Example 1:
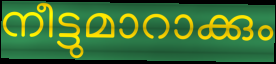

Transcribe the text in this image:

നീട്ടുമാറാക്കും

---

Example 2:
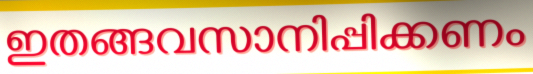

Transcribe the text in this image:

ഇതങ്ങവസാനിപ്പിക്കണം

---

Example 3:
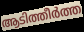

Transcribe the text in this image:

ആടിത്തീർത്ത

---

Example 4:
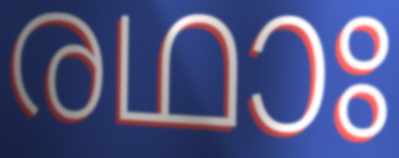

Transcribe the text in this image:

രഥാഃ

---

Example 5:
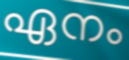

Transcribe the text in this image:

ഏനം